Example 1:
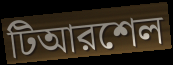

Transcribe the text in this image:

টিআরশেল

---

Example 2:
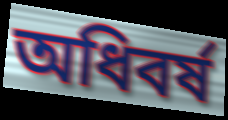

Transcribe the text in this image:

অধিবর্ষ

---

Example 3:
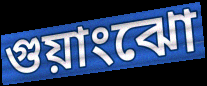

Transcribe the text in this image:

গুয়াংঝো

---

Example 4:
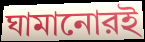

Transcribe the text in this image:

ঘামানোরই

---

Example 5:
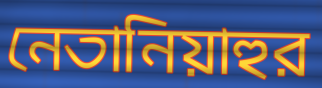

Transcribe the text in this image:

নেতানিয়াহুর